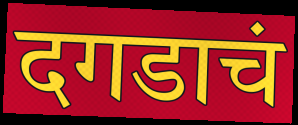
दगडाचं